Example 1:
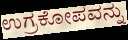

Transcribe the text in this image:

ಉಗ್ರಕೋಪವನ್ನು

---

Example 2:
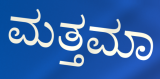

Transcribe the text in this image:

ಮತ್ತಮಾ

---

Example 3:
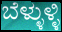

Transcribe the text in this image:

ಬೆಳ್ಳುಳ್ಳಿ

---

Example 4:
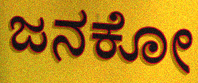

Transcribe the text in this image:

ಜನಕೋ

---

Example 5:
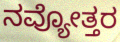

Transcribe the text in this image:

ನವ್ಯೋತ್ತರ